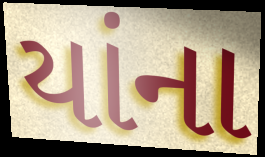
યાંના